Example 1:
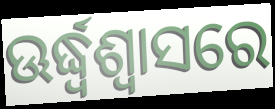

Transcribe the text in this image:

ଊର୍ଦ୍ଧ୍ୱଶ୍ୱାସରେ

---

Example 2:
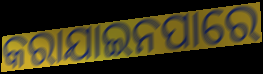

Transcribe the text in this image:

କରାଯାଇନପାରେ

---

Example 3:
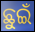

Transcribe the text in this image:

ଛୁଇଁ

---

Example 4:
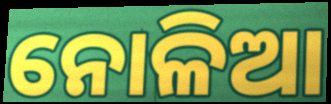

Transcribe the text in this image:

ନୋଳିଆ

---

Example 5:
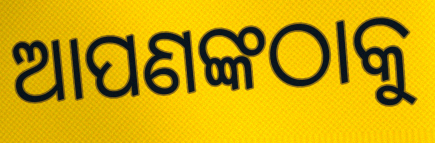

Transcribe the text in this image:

ଆପଣଙ୍କଠାକୁ